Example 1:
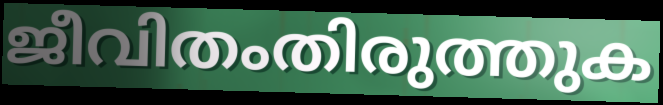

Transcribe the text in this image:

ജീവിതംതിരുത്തുക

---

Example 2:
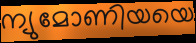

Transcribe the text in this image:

ന്യുമോണിയയെ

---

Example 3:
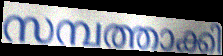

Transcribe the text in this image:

സമ്പത്താക്കി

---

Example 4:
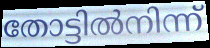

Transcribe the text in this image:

തോട്ടിൽനിന്ന്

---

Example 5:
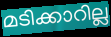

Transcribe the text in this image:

മടിക്കാറില്ല